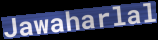
Jawaharlal